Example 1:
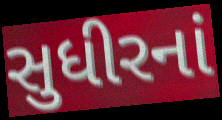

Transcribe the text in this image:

સુધીરનાં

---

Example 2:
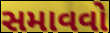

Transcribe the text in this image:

સમાવવો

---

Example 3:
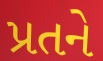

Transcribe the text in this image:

પ્રતને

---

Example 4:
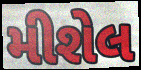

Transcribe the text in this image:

મીશેલ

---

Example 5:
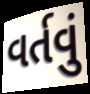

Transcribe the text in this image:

વર્તવું